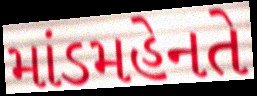
માંડમહેનતે